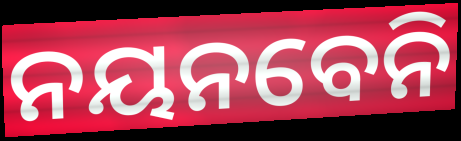
ନୟନବେନି